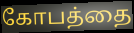
கோபத்தை